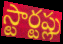
స్టార్టప్లు